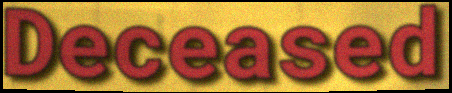
Deceased